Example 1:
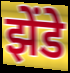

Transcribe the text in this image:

झेंडे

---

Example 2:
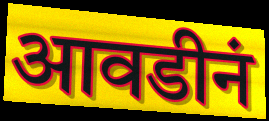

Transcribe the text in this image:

आवडीनं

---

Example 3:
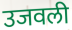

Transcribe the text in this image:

उजवली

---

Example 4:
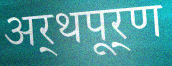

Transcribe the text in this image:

अर्थपूर्ण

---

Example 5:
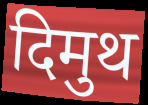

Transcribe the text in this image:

दिमुथ